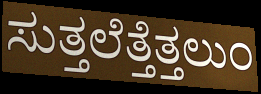
ಸುತ್ತಲೆತ್ತೆತ್ತಲುಂ